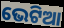
ଭେଟିଆ